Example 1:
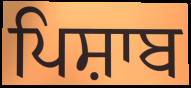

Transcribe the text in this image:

ਪਿਸ਼ਾਬ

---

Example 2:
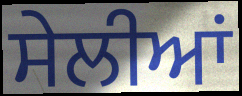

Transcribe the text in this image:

ਸੇਲੀਆਂ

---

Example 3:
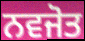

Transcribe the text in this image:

ਨਵਜੋਤ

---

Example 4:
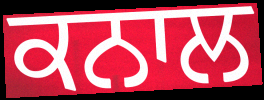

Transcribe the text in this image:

ਕਨਾਲ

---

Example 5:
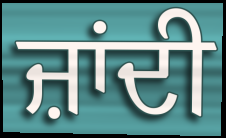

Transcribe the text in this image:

ਜ਼ਾਂਦੀ